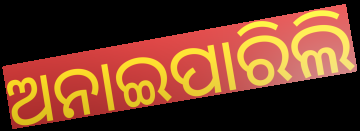
ଅନାଇପାରିଲି